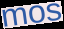
mos